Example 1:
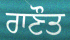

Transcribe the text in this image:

ਰਾਣੌਤ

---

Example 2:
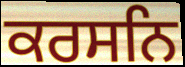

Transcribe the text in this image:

ਕਰਸਨਿ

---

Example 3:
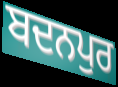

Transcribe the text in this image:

ਬਦਨਪੁਰ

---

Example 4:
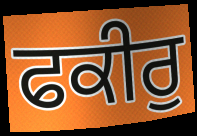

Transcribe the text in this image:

ਫਕੀਰੁ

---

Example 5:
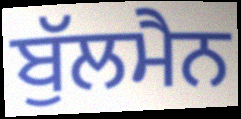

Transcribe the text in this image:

ਬੁੱਲਮੈਨ